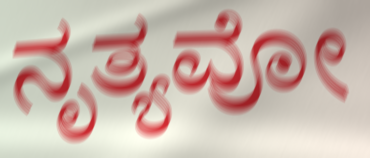
ನೃತ್ಯವೋ